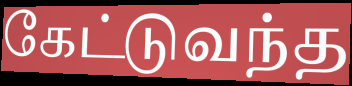
கேட்டுவந்த